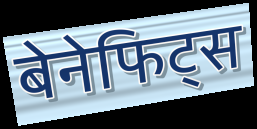
बेनेफिट्स